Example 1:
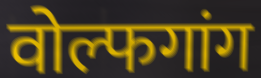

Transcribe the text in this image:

वोल्फगांग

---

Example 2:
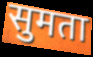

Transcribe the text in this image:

सुमता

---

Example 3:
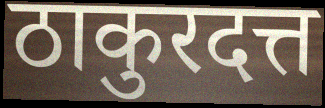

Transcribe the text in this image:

ठाकुरदत्त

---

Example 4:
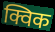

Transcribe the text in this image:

क्विक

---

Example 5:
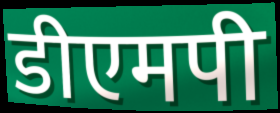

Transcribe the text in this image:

डीएमपी